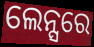
ଲେନ୍ସରେ